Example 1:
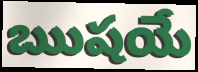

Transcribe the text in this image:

ఋషయే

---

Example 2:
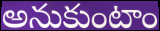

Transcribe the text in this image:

అనుకుంటాం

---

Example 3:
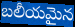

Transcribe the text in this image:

బలీయమైన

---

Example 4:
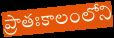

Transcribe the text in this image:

ప్రాతఃకాలంలోని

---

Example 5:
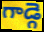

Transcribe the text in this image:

గాడ్గె